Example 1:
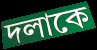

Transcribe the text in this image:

দলাকে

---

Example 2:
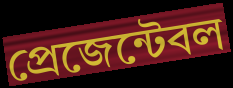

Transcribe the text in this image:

প্রেজেন্টেবল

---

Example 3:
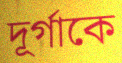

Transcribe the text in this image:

দূর্গাকে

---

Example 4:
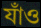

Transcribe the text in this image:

যাঁও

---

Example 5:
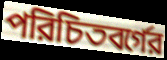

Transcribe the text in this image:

পরিচিতবর্গের